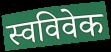
स्वविवेक